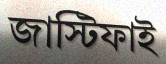
জাস্টিফাই